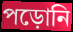
পড়োনি